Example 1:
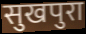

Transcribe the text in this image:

सुखपुरा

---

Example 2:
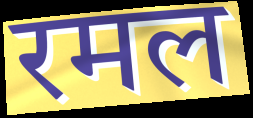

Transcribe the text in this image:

रमल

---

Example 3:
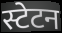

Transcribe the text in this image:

स्टेटन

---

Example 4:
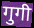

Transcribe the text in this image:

गुगी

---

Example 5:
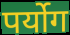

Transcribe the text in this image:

पर्योग